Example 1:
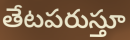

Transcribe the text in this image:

తేటపరుస్తూ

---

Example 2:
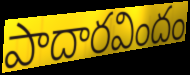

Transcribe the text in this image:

పాదారవిందం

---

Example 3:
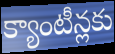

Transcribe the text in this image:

క్యాంటీన్లకు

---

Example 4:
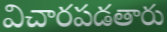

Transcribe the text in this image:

విచారపడతారు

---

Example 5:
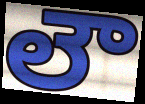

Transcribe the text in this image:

లౌ